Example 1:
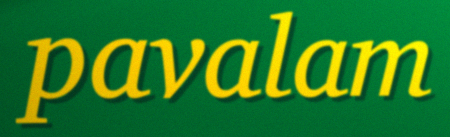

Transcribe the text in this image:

pavalam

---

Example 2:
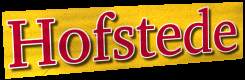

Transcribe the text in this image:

Hofstede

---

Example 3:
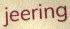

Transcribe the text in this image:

jeering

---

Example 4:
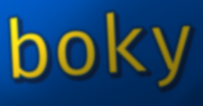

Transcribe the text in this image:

boky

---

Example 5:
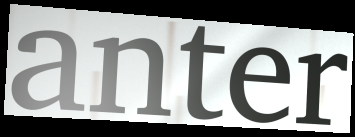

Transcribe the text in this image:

anter